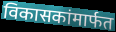
विकासकांमार्फत